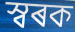
স্বৰক